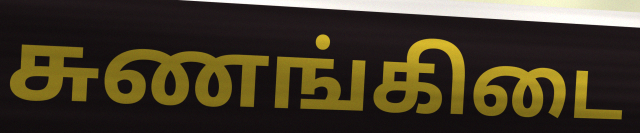
சுணங்கிடை